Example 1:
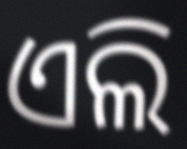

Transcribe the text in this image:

ଏଲି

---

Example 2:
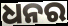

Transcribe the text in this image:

ଧନର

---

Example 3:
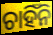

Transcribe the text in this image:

ଚାହିଁନି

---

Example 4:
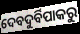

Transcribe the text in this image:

ଦେବଦୁର୍ବିପାକରୁ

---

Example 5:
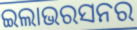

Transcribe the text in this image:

ଇଲାଭରସନର